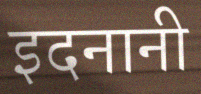
इदनानी